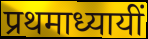
प्रथमाध्यायीं